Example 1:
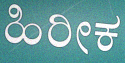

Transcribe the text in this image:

ಹಿರೀಕ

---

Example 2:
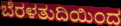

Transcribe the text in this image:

ಬೆರಳತುದಿಯಿಂದ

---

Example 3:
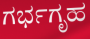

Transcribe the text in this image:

ಗರ್ಭಗೃಹ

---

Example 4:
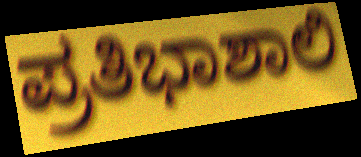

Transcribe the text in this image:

ಪ್ರತಿಭಾಶಾಲಿ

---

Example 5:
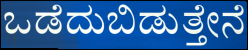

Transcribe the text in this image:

ಒಡೆದುಬಿಡುತ್ತೇನೆ